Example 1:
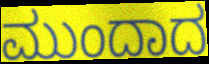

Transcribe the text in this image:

ಮುಂದಾದ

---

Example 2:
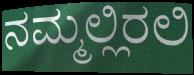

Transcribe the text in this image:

ನಮ್ಮಲ್ಲಿರಲಿ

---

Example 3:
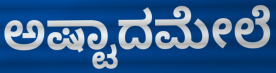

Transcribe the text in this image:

ಅಷ್ಟಾದಮೇಲೆ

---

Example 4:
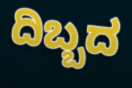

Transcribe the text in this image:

ದಿಬ್ಬದ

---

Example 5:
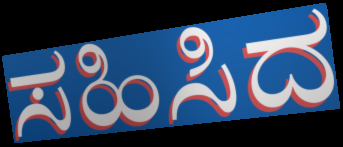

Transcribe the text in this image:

ಸಹಿಸಿದ